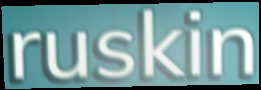
ruskin